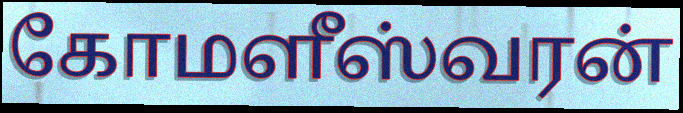
கோமளீஸ்வரன்